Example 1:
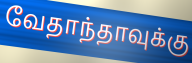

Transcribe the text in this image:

வேதாந்தாவுக்கு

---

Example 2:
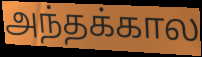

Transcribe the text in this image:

அந்தக்கால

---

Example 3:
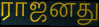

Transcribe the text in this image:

ராஜனது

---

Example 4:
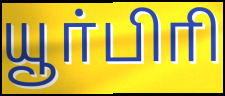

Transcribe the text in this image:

யூர்பிரி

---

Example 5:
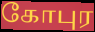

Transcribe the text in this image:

கோபுர